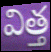
విత్త